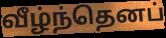
வீழ்ந்தெனப்